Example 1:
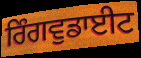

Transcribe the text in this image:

ਰਿੰਗਵੁਡਾਈਟ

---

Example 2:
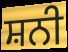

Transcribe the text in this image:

ਸ਼ਨੀ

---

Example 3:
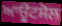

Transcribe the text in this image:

ਆਊਟਸੋਲ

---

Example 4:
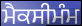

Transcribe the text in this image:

ਮੈਕਸੀਮੰਮ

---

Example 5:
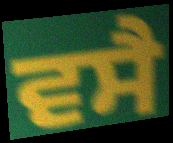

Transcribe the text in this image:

ਵਸੈ